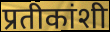
प्रतीकांशी